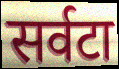
सर्वटा